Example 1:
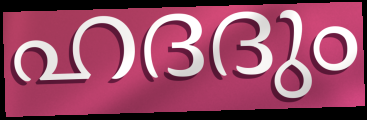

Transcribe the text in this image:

ഹദദും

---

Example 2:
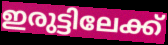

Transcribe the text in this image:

ഇരുട്ടിലേക്ക്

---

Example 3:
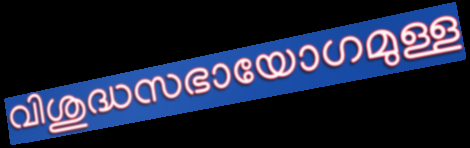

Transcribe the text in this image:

വിശുദ്ധസഭായോഗമുള്ള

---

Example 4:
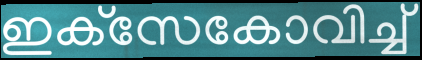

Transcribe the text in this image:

ഇക്‌സേകോവിച്ച്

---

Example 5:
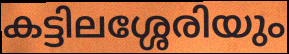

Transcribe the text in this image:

കട്ടിലശ്ശേരിയും